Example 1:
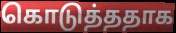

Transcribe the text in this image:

கொடுத்ததாக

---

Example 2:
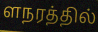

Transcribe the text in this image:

ளநரத்தில்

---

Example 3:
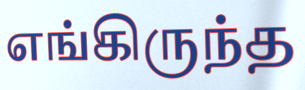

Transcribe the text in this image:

எங்கிருந்த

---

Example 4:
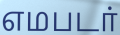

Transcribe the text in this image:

எமபடர்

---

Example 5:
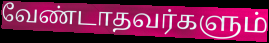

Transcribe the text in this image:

வேண்டாதவர்களும்